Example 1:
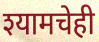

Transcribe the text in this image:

श्यामचेही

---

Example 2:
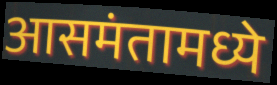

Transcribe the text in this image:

आसमंतामध्ये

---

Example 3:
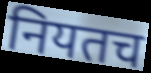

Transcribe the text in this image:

नियतच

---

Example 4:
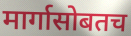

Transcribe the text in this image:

मार्गासोबतच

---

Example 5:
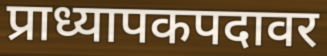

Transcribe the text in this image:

प्राध्यापकपदावर